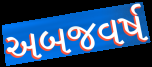
અબજવર્ષ